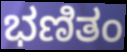
ಭಣಿತಂ